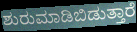
ಶುರುಮಾಡಿಬಿಡುತ್ತಾರೆ